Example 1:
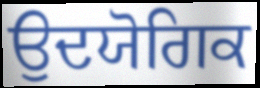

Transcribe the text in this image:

ਉਦਯੋਗਿਕ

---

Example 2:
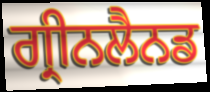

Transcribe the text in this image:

ਗ੍ਰੀਨਲੈਨਡ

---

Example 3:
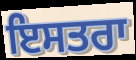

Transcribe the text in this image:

ਇਸਤਰਾ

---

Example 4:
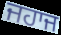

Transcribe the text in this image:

ਜਹਾਜ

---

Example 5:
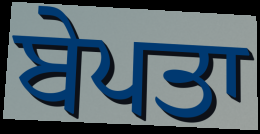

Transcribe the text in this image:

ਬੇਪਤਾ